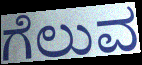
ಗೆಲುವ